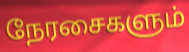
நேரசைகளும்